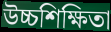
উচ্চশিক্ষিতা